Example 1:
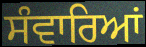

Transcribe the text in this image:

ਸੰਵਾਰਿਆਂ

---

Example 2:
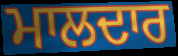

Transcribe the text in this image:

ਮਾਲਦਾਰ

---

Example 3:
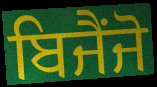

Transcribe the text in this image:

ਬਿਜੈਂਜੋ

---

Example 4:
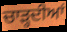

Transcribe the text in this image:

ਚਾੜ੍ਹਦੀਆਂ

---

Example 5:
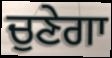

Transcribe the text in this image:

ਚੁਣੇਗਾ